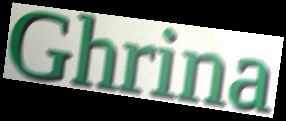
Ghrina